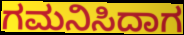
ಗಮನಿಸಿದಾಗ